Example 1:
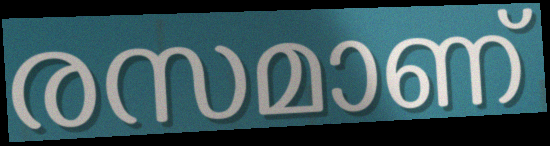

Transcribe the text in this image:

രസമാണ്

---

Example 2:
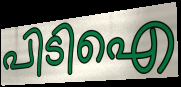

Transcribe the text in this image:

പിടിഐ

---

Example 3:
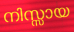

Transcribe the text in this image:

നിസ്സായ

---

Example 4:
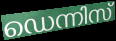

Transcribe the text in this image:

ഡെന്നിസ്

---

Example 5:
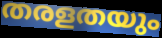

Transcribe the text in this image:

തരളതയും